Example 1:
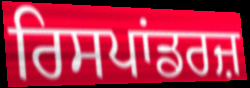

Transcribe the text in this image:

ਰਿਸਪਾਂਡਰਜ਼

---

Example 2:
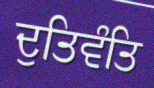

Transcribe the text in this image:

ਦੁਤਿਵੰਤਿ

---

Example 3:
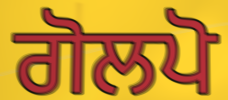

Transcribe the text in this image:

ਗੋਲਪੋ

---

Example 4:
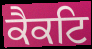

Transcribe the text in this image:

ਕੈਕਟਿ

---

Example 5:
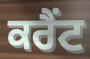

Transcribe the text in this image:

ਕਰੈਂਟ